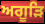
ਅਗੂੜਿ